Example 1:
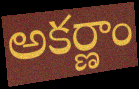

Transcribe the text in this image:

అకర్ణాం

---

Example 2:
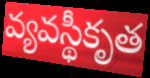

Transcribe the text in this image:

వ్యవస్థీకృత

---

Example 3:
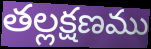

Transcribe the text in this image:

తల్లక్షణము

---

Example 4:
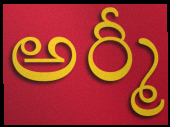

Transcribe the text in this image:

అర్మీ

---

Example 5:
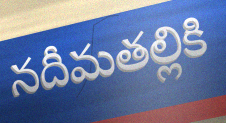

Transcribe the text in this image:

నదీమతల్లికి